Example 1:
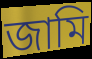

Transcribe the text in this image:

জামি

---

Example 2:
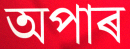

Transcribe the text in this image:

অপাৰ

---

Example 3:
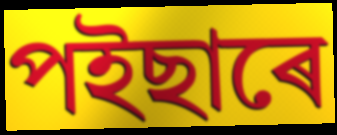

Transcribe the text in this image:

পইছাৰে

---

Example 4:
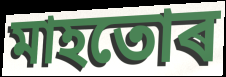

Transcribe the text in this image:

মাহতোৰ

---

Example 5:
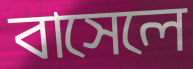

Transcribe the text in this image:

বাসেলে